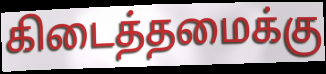
கிடைத்தமைக்கு